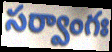
సర్వాంగః